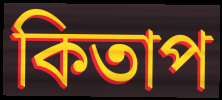
কিতাপ